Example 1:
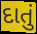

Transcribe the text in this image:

દાતું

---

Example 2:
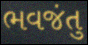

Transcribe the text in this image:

ભવજંતુ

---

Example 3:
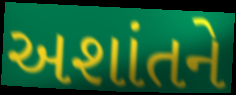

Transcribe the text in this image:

અશાંતને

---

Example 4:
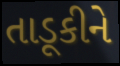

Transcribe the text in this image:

તાડૂકીને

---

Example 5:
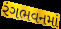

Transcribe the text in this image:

રંગભવનમાં